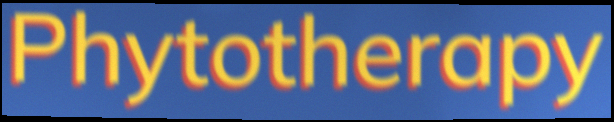
Phytotherapy